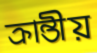
ক্ৰান্তীয়